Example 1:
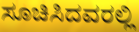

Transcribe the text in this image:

ಸೂಚಿಸಿದವರಲ್ಲಿ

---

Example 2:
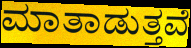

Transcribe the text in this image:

ಮಾತಾಡುತ್ತವೆ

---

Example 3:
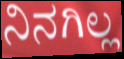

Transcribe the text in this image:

ನಿನಗಿಲ್ಲ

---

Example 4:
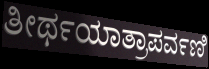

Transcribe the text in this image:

ತೀರ್ಥಯಾತ್ರಾಪರ್ವಣಿ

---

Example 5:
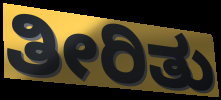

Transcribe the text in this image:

ತೀರಿತು